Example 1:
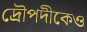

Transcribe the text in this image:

দ্রৌপদীকেও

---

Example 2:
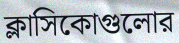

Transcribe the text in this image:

ক্লাসিকোগুলোর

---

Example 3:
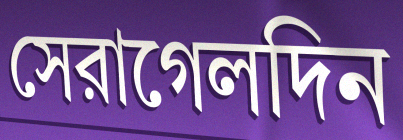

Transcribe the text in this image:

সেরাগেলদিন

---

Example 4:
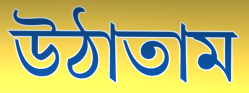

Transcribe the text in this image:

উঠাতাম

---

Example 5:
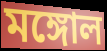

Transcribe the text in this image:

মঙ্গোল